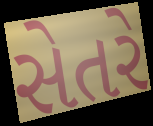
સેતરે